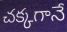
చక్కగానే